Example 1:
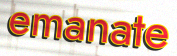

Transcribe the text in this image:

emanate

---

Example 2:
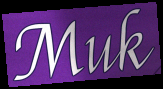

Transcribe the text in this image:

Muk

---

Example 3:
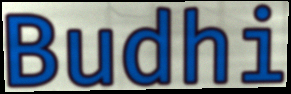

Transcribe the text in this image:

Budhi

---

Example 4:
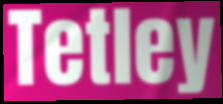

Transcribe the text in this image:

Tetley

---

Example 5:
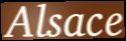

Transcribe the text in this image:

Alsace